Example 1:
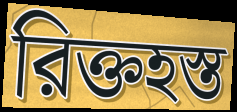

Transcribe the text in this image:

রিক্তহস্ত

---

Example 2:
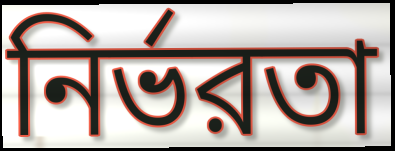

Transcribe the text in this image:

নির্ভরতা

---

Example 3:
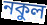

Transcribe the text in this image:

নকুল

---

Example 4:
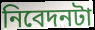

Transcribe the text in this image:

নিবেদনটা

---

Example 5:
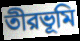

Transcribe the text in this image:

তীরভূমি